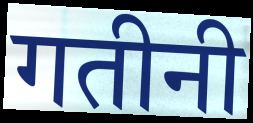
गतीनी